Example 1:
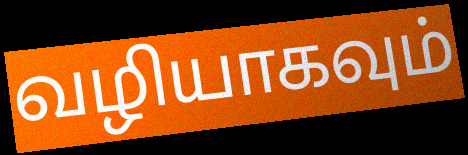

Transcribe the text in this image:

வழியாகவும்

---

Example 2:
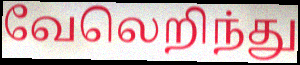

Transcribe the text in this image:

வேலெறிந்து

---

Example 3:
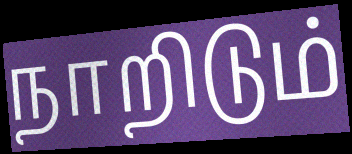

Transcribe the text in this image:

நாறிடும்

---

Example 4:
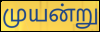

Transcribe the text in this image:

முயன்று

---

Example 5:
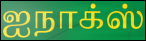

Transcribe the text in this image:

ஐநாக்ஸ்